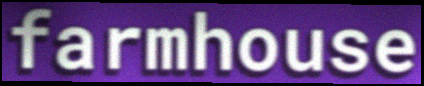
farmhouse